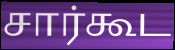
சார்கூட